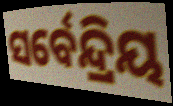
ସର୍ବେନ୍ଦ୍ରିୟ